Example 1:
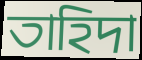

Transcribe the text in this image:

তাহিদা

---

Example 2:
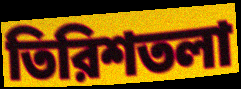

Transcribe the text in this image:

তিরিশতলা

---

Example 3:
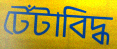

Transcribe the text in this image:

টেঁটাবিদ্ধ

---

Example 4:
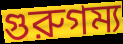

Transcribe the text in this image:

গুরুগম্য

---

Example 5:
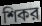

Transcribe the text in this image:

শিকর